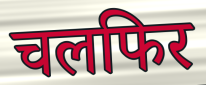
चलफिर